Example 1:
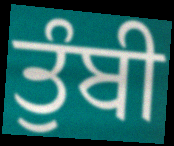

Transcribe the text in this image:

ਤੁੰਬੀ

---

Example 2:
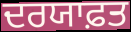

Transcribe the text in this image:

ਦਰਯਾਫ਼ਤ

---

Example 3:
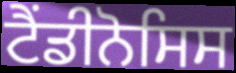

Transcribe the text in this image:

ਟੈਂਡੀਨੋਸਿਸ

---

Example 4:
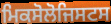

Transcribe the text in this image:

ਮਿਕਸੋਲੋਜਿਸਟਸ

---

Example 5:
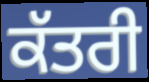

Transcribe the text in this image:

ਕੱਤਰੀ